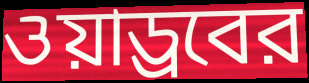
ওয়াড্রবের